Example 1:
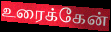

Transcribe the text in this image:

உரைக்கேன்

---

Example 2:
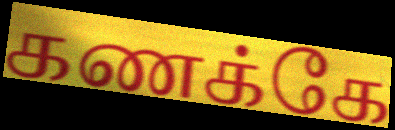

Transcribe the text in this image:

கணக்கே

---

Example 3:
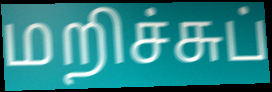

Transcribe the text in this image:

மறிச்சுப்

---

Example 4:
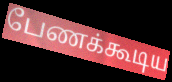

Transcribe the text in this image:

பேணக்கூடிய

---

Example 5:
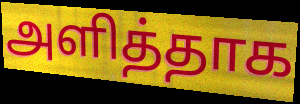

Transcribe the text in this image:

அளித்தாக